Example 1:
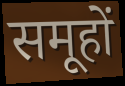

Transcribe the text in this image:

समूहों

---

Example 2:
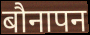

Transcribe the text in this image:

बौनापन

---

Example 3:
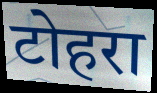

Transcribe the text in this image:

टोहरा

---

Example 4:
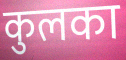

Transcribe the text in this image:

कुलका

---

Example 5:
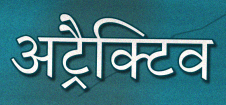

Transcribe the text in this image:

अट्रैक्टिव